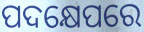
ପଦକ୍ଷେପରେ